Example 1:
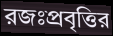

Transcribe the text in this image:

রজঃপ্রবৃত্তির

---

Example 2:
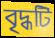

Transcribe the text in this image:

বৃদ্ধটি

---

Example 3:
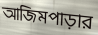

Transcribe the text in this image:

আজিমপাড়ার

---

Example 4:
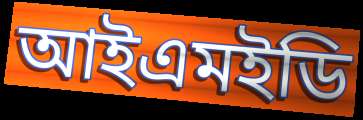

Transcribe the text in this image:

আইএমইডি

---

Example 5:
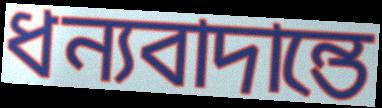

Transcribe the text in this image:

ধন্যবাদান্তে